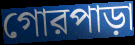
গোরপাড়া